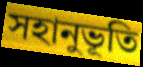
সহানুভূতি